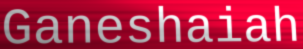
Ganeshaiah